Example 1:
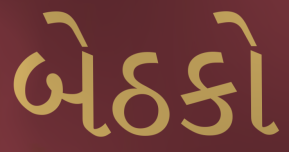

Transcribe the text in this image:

બેઠકો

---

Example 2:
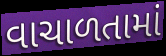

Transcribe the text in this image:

વાચાળતામાં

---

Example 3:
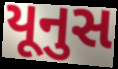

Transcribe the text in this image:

યૂનુસ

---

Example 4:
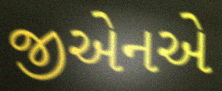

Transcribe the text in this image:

જીએનએ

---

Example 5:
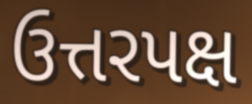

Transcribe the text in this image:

ઉત્તરપક્ષ